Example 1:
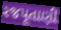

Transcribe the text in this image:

રજપૂતાણી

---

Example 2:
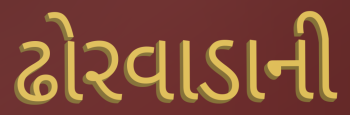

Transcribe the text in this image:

ઢોરવાડાની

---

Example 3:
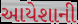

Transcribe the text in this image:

આયેશાની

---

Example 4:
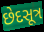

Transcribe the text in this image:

છેદસૂત્ર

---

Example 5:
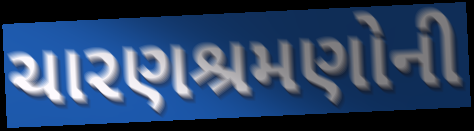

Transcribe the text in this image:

ચારણશ્રમણોની